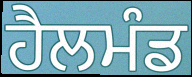
ਹੈਲਮੰਡ